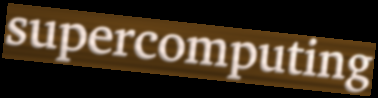
supercomputing